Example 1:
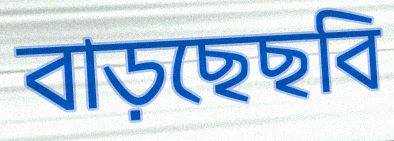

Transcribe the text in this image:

বাড়ছেছবি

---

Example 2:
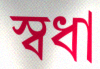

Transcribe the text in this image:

স্বধা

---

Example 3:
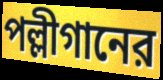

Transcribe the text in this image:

পল্লীগানের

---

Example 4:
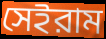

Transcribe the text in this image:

সেইরাম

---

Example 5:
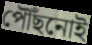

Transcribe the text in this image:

পৌঁছনোই